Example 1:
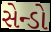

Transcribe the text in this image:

સેન્ડો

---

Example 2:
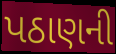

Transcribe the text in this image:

પઠાણની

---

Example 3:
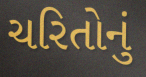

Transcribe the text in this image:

ચરિતોનું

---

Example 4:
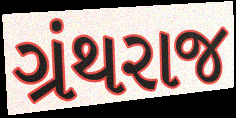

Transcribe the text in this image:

ગ્રંથરાજ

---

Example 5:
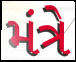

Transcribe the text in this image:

મંત્રે